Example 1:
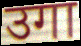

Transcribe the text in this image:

उगा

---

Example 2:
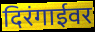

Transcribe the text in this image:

दिरंगाईवर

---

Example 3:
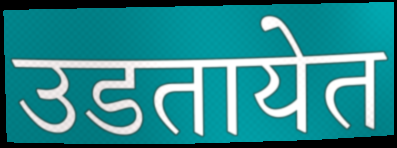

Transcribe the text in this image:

उडतायेत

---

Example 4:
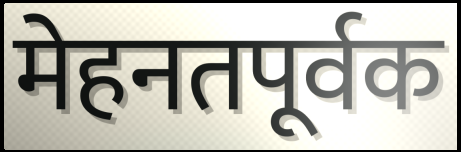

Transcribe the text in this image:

मेहनतपूर्वक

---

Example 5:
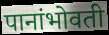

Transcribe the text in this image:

पानांभोवती